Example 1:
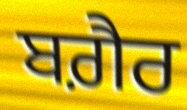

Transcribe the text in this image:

ਬਗ਼ੈਰ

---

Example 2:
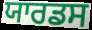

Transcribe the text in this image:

ਯਾਰਡਸ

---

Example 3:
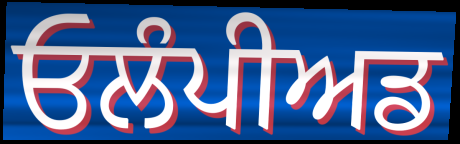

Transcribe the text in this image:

ਓਲੰਪੀਅਡ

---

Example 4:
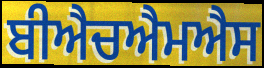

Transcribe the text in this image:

ਬੀਐਚਐਮਐਸ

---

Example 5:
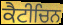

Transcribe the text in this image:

ਕੈਟੀਚਿਨ